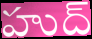
హుద్